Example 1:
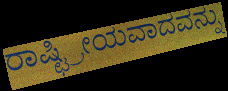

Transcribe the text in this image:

ರಾಷ್ಟ್ರೀಯವಾದವನ್ನು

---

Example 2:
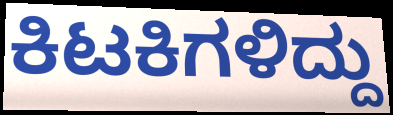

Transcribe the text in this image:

ಕಿಟಕಿಗಳಿದ್ದು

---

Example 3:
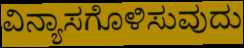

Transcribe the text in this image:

ವಿನ್ಯಾಸಗೊಳಿಸುವುದು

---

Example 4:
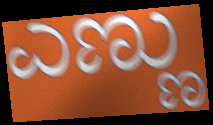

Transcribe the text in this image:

ಎಣ್ಣು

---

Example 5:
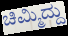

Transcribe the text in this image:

ಚಿಮ್ಮಿದ್ದು